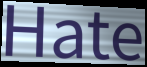
Hate